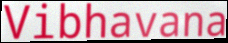
Vibhavana